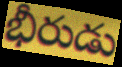
భీరుడు